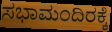
ಸಭಾಮಂದಿರಕ್ಕೆ